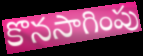
కొనసాగింపు